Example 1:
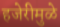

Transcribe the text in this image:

हजेरीमुळे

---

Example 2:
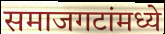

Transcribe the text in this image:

समाजगटांमध्ये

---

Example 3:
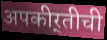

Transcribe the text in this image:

अपकीर्तीची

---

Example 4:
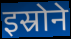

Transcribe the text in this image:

इस्रोने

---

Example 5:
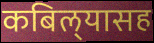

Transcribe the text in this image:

कबिल्यासह